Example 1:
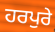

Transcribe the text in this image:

ਹਰਪੁਰੇ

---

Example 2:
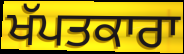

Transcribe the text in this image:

ਖੱਪਤਕਾਰਾ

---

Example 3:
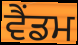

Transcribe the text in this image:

ਵੈਂਡਮ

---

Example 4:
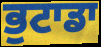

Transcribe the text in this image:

ਭੁਟਾਡਾ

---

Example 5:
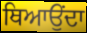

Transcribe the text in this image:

ਥਿਆਉਂਦਾ